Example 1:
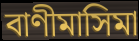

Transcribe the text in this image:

বাণীমাসিমা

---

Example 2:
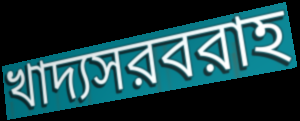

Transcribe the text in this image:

খাদ্যসরবরাহ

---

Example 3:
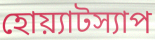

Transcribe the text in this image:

হোয়্যাটস্যাপ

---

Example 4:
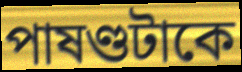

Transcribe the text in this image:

পাষণ্ডটাকে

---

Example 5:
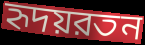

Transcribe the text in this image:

হৃদয়রতন